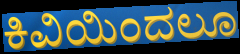
ಕಿವಿಯಿಂದಲೂ